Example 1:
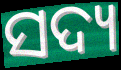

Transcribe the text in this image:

ସଦ୍ୟ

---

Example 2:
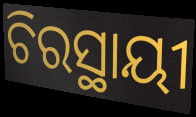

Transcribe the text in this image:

ଚିରସ୍ଥାୟୀ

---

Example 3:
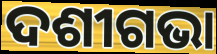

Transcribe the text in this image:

ଦଶୀଗଭା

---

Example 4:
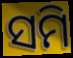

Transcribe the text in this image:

ସମି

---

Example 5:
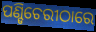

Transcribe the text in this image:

ପଣ୍ଡିଚେରୀଠାରେ